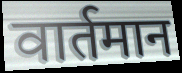
वार्तमान